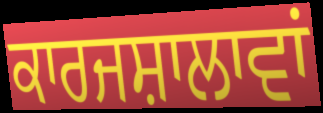
ਕਾਰਜਸ਼ਾਲਾਵਾਂ